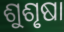
ଶୁଶୃଷା